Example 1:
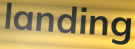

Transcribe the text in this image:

landing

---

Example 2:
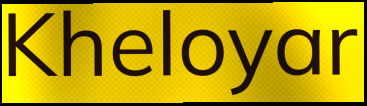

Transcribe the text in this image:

Kheloyar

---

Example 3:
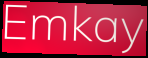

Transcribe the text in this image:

Emkay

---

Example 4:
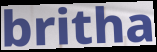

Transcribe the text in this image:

britha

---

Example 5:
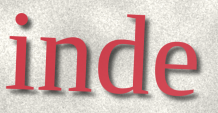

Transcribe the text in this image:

inde